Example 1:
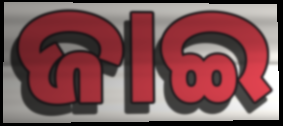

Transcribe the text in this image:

ଜାଇ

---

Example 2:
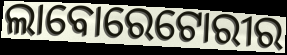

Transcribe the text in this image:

ଲାବୋରେଟୋରୀର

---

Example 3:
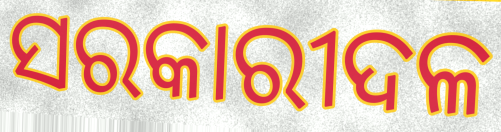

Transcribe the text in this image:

ସରକାରୀଦଳ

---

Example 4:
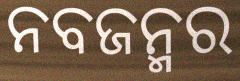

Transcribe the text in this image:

ନବଜନ୍ମର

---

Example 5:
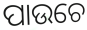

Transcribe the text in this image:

ପାଉଚେ